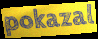
pokazal